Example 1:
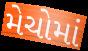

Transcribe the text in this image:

મેચોમાં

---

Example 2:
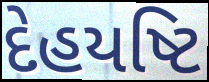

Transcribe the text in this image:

દેહયષ્ટિ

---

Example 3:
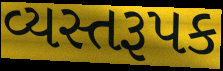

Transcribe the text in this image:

વ્યસ્તરૂપક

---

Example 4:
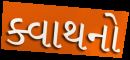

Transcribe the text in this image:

ક્વાથનો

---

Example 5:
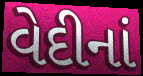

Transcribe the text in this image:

વેદીનાં